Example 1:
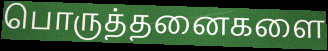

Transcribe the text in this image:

பொருத்தனைகளை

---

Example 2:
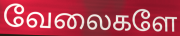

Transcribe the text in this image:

வேலைகளே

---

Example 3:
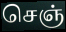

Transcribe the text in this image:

செஞ்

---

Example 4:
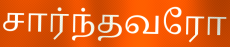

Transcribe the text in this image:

சார்ந்தவரோ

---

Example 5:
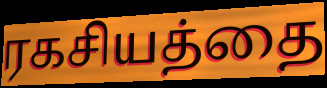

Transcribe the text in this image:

ரகசியத்தை